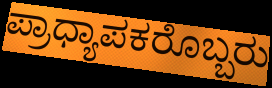
ಪ್ರಾಧ್ಯಾಪಕರೊಬ್ಬರು